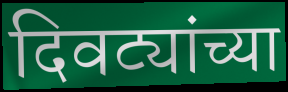
दिवट्यांच्या